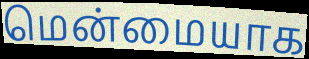
மென்மையாக